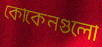
কোকেনগুলো